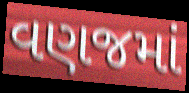
વણજમાં